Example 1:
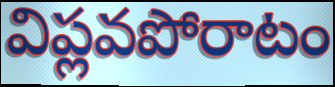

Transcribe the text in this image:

విప్లవపోరాటం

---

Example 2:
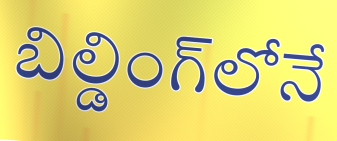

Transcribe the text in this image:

బిల్డింగ్‌లోనే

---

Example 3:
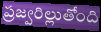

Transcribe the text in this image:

ప్రజ్వరిల్లుతోంది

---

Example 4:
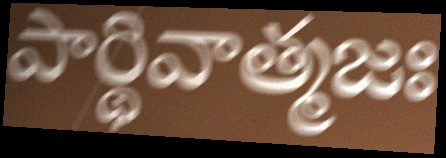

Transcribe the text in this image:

పార్థివాత్మజః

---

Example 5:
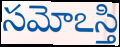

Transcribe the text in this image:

సమోఽస్తి